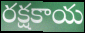
రక్షకాయ